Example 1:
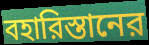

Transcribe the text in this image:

বহারিস্তানের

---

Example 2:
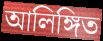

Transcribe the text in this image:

আলিঙ্গিত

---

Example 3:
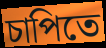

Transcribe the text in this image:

চাপিতে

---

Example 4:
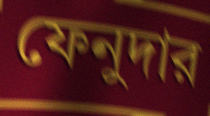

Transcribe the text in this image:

ফেনুদার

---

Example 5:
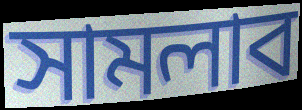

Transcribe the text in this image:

সামলাব